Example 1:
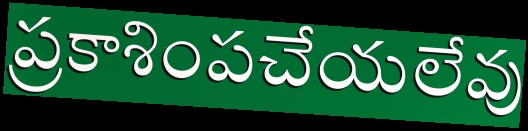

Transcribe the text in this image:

ప్రకాశింపచేయలేవు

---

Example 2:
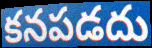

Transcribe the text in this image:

కనపడదు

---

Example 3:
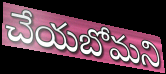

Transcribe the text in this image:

చేయబోమని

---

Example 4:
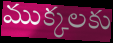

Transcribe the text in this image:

ముక్కలకు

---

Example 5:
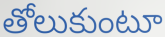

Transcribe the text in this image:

తోలుకుంటూ